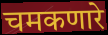
चमकणारे